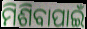
ମିଶିବାପାଇଁ